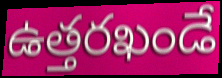
ఉత్తరఖండే